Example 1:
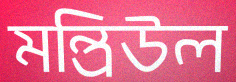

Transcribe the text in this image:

মন্ত্রিউল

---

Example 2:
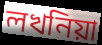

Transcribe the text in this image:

লখনিয়া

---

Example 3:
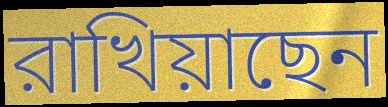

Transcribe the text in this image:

রাখিয়াছেন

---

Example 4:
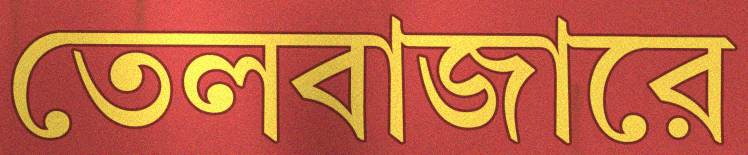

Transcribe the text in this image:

তেলবাজারে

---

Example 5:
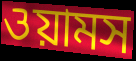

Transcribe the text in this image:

ওয়ামস